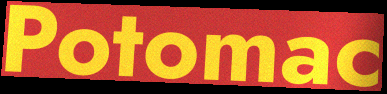
Potomac